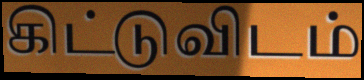
கிட்டுவிடம்